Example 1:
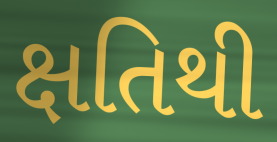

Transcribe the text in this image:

ક્ષતિથી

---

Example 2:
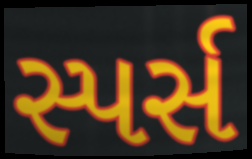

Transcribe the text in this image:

સ્પર્સ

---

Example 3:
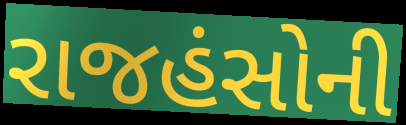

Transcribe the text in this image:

રાજહંસોની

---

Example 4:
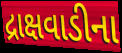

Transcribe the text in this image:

દ્રાક્ષવાડીના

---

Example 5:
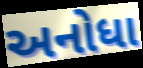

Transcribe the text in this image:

અનોધા